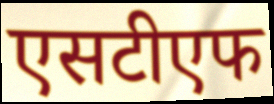
एसटीएफ